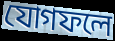
যোগফলে